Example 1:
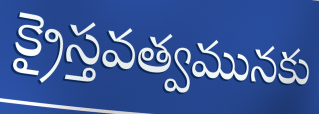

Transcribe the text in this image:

క్రైస్తవత్వమునకు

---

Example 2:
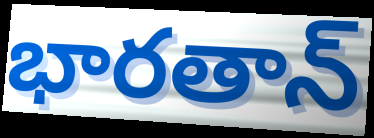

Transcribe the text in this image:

భారతాన్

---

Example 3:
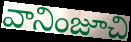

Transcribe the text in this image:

వానింజూచి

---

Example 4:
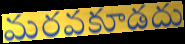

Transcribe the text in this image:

మరవకూడదు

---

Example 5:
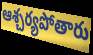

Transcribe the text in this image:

ఆశ్చర్యపోతారు